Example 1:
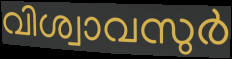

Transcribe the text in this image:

വിശ്വാവസുർ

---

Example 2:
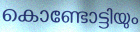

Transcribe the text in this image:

കൊണ്ടോട്ടിയും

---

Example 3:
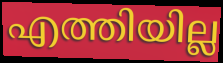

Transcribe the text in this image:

എത്തിയില്ല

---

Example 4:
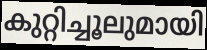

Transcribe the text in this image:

കുറ്റിച്ചൂലുമായി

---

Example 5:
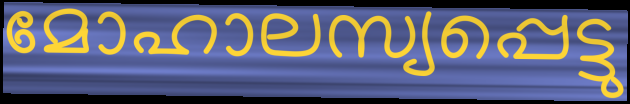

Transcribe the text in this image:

മോഹാലസ്യപ്പെട്ടു